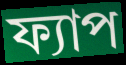
ফ্যাপ